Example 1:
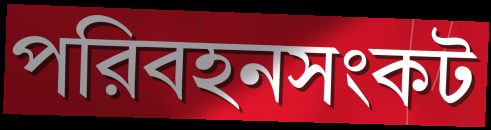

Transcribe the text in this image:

পরিবহনসংকট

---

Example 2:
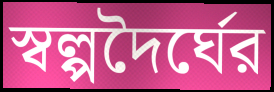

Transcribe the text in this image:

স্বল্পদৈর্ঘের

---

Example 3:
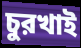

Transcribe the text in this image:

চুরখাই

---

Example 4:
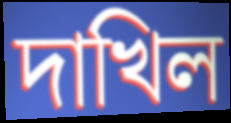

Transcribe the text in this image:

দাখিল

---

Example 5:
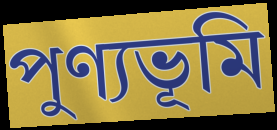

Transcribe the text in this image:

পুণ্যভূমি